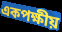
একপক্ষীয়